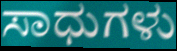
ಸಾಧುಗಳು